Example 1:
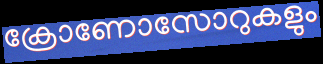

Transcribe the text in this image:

ക്രോണോസോറുകളും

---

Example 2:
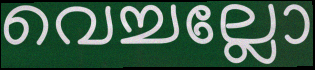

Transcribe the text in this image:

വെച്ചല്ലോ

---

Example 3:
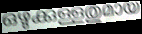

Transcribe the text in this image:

ഒഴുക്കുള്ളതുമായ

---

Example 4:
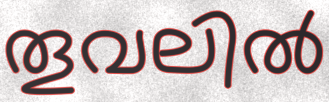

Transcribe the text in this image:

തൂവലിൽ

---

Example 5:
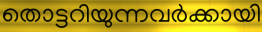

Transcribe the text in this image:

തൊട്ടറിയുന്നവർക്കായി